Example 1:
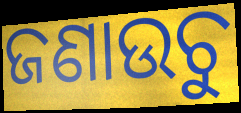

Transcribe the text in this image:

ଜଣାଉଚୁ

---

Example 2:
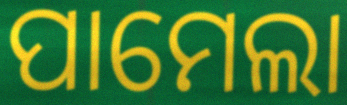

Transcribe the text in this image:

ପାମେଲା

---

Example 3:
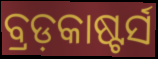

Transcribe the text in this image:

ବ୍ରଡ଼କାଷ୍ଟର୍ସ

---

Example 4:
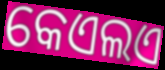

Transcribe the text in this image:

କେଏଲଏ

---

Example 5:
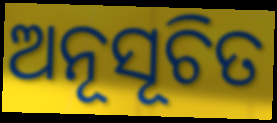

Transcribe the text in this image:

ଅନୂସୂଚିତ